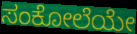
ಸಂಕೋಲೆಯೇ